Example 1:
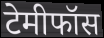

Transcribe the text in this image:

टेमीफॉस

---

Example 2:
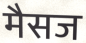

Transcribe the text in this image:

मैसज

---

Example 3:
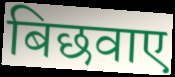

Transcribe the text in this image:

बिछवाए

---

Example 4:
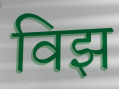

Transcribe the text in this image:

विझ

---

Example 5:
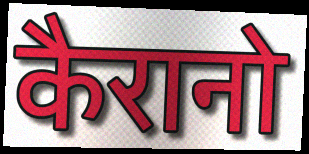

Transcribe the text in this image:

कैरानो